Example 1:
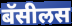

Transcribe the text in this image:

बॅसीलस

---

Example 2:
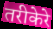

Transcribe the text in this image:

तरीकेरे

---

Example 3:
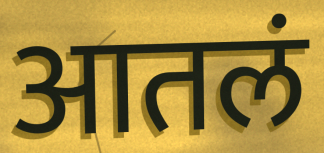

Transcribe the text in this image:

आतलं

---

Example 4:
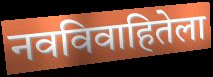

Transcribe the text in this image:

नवविवाहितेला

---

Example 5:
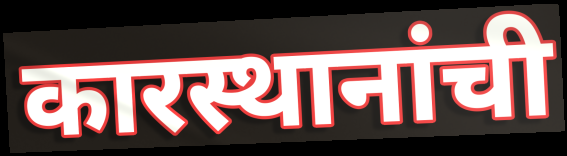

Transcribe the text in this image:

कारस्थानांची